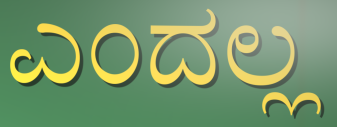
ಎಂದಲ್ಲ